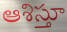
ఆశిస్తూ